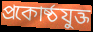
প্রকোষ্ঠযুক্ত